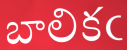
బాలికఁ